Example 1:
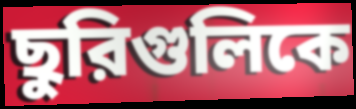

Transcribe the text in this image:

ছুরিগুলিকে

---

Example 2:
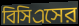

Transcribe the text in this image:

বিসিএসের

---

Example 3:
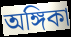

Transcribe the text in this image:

অঙ্গিকা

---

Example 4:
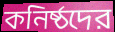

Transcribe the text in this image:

কনিষ্ঠদের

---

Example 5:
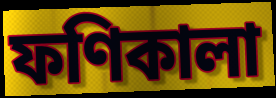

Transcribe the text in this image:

ফণিকালা